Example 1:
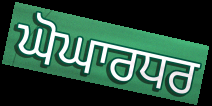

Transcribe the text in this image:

ਘੋਘਾਰਧਰ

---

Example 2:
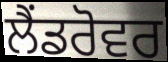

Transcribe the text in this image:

ਲੈਂਡਰੋਵਰ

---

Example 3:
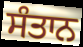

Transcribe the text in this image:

ਸੰਤਾਨ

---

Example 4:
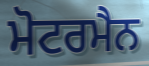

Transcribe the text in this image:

ਮੋਟਰਮੈਨ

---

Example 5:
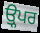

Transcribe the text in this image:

ਉ੍ਨਪਰ